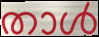
താൾ